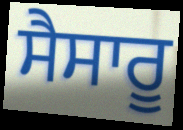
ਸੈਸਾਰੂ